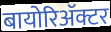
बायोरिॲक्टर